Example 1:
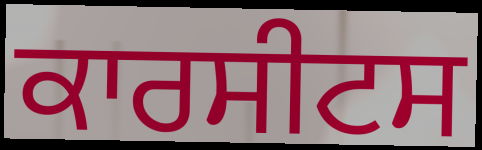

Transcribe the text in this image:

ਕਾਰਸੀਟਸ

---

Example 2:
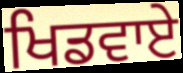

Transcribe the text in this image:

ਖਿਡਵਾਏ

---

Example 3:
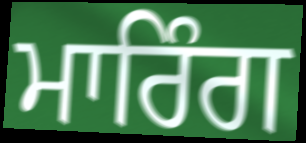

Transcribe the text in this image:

ਮਾਰਿੰਗ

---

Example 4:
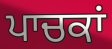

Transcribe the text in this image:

ਪਾਚਕਾਂ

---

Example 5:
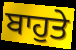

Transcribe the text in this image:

ਬਾਹੁਤੇ